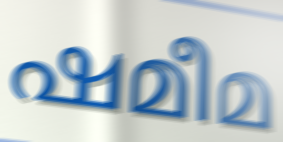
ഷമീമ